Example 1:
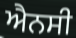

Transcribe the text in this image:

ਐਨਸੀ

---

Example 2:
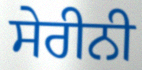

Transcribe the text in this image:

ਸੇਰੀਨੀ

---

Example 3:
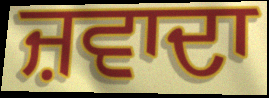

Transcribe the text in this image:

ਜ਼ਵਾਦਾ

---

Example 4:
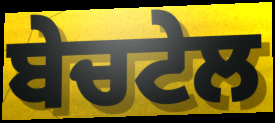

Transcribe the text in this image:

ਬੇਚਟੇਲ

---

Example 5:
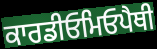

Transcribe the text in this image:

ਕਾਰਡੀਓਮਿਓਪੈਥੀ